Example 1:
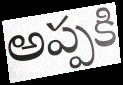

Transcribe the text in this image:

అప్పకి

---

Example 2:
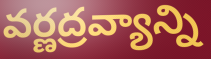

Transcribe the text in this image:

వర్ణద్రవ్యాన్ని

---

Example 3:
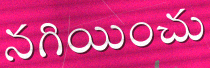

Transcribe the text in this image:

నగియించు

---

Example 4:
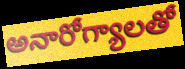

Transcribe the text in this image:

అనారోగ్యాలతో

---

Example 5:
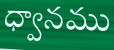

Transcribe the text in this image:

ధ్వానము